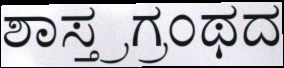
ಶಾಸ್ತ್ರಗ್ರಂಥದ